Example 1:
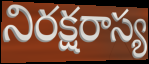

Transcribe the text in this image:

నిరక్షరాస్య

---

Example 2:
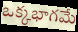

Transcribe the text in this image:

ఒక్కభాగమే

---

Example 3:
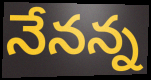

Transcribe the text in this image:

నేనన్న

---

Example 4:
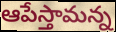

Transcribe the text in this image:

ఆపేస్తామన్న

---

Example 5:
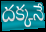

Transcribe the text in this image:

దక్కనే